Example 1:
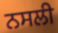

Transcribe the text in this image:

ਨਸਲੀ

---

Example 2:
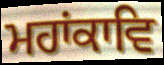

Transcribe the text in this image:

ਮਹਾਂਕਾਵਿ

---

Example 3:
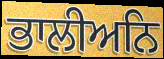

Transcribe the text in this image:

ਭਾਲੀਅਨਿ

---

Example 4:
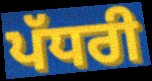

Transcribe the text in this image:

ਪੱਧਰੀ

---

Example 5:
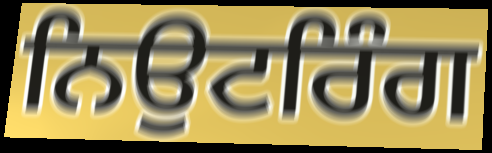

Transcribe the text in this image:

ਨਿਉਟਰਿੰਗ